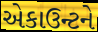
એકાઉન્ટને